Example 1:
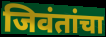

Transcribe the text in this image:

जिवंतांचा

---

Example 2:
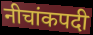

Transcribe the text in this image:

नीचांकपदी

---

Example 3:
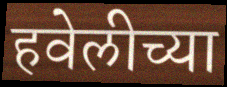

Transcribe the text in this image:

हवेलीच्या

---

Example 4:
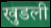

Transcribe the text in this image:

खुडली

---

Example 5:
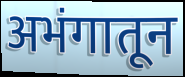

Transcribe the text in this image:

अभंगातून